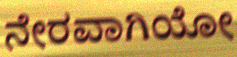
ನೇರವಾಗಿಯೋ